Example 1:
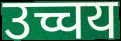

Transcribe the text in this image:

उच्चय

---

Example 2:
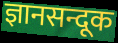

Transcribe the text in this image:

ज्ञानसन्दूक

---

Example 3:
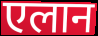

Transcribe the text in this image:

एलान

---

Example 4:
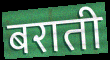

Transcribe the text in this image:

बराती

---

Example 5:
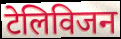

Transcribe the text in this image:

टेलिविजन